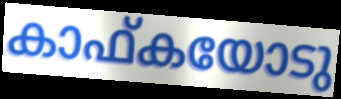
കാഫ്കയോടു